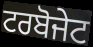
ਟਰਬੋਜੇਟ